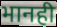
भानही